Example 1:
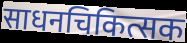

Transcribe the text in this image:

साधनचिकित्सक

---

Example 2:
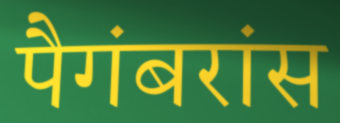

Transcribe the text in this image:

पैगंबरांस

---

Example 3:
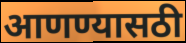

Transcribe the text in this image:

आणण्यासठी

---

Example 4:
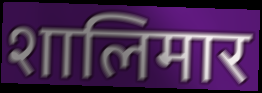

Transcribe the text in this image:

शालिमार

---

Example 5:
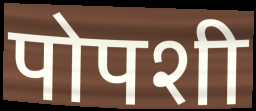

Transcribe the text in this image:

पोपशी